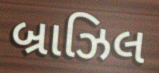
બ્રાઝિલ